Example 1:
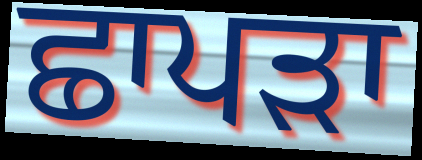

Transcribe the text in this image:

ਛਾਪੜਾ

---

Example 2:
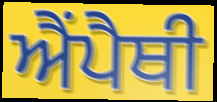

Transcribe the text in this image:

ਐਂਪੈਥੀ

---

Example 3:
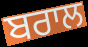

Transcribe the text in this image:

ਬਰਾਲ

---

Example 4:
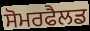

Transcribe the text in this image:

ਸੋਮਰਫੈਲਡ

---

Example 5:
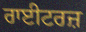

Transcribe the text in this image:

ਰਾਈਟਰਜ਼